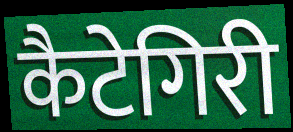
कैटेगिरी